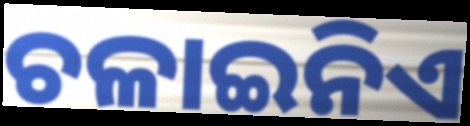
ଚଳାଇନିଏ